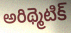
అరిథ్మెటిక్